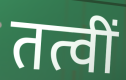
तत्वीं